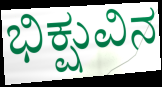
ಭಿಕ್ಷುವಿನ